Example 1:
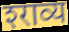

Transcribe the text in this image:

श्राव्य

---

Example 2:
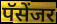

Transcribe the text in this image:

पॅसेंजर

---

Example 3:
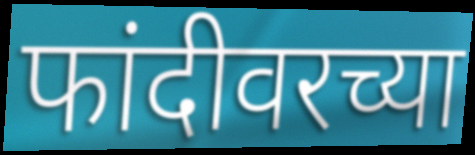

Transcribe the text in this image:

फांदीवरच्या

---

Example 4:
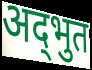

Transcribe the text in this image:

अद्‍भुत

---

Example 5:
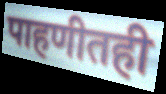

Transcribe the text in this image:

पाहणीतही